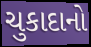
ચુકાદાનો